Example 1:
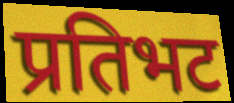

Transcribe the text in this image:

प्रतिभट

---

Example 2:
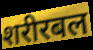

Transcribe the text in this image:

शरीरबल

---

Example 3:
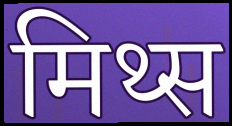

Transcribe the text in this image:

मिथ्स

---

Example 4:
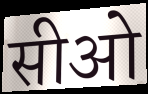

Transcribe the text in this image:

सीओ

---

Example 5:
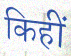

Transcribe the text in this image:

किहीं